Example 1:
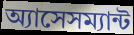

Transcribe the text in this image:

অ্যাসেসম্যান্ট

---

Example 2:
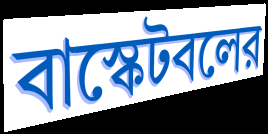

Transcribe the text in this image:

বাস্কেটবলের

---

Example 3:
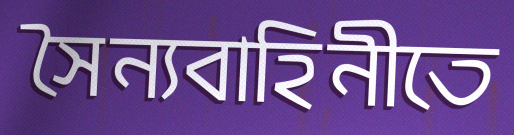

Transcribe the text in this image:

সৈন্যবাহিনীতে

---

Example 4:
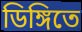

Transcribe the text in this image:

ডিঙ্গিতে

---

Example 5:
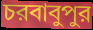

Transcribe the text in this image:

চরবাবুপুর